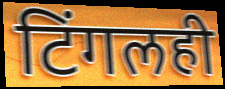
टिंगलही